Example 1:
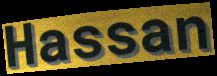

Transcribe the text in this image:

Hassan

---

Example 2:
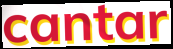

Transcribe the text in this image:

cantar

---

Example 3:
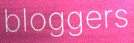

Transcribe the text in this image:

bloggers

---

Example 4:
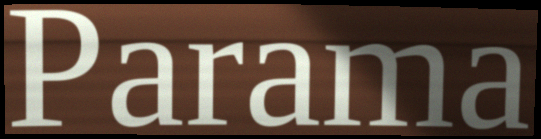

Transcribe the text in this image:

Parama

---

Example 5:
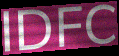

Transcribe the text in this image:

IDFC